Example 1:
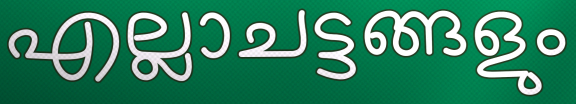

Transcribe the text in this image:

എല്ലാചട്ടങ്ങളും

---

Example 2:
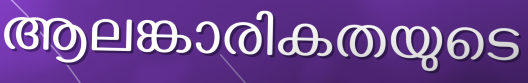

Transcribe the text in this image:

ആലങ്കാരികതയുടെ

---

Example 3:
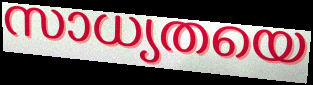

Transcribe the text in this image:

സാധ്യതയെ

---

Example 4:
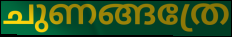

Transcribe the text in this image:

ചുണങ്ങത്രേ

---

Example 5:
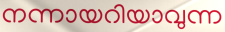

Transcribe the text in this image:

നന്നായറിയാവുന്ന